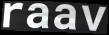
raav